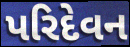
પરિદેવન